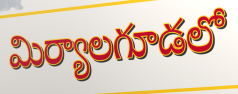
మిర్యాలగూడలో